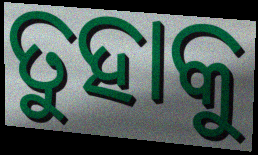
ତୁହାକୁ